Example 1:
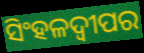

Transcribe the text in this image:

ସିଂହଳଦ୍ୱୀପର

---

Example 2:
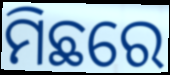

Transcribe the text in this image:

ମିଛରେ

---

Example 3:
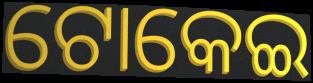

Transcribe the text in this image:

ଟୋକେଇ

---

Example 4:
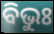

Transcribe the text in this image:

ବିଭୁଃ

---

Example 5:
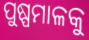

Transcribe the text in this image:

ପୁଷ୍ପମାଳକୁ